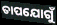
ତାପଯୋଗୁଁ